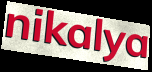
nikalya